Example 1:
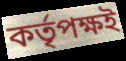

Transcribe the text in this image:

কৰ্তৃপক্ষই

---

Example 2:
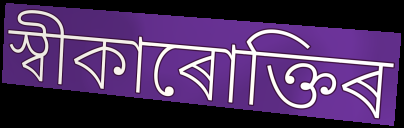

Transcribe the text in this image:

স্বীকাৰোক্তিৰ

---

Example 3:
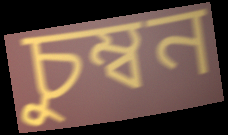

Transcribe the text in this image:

চুম্বন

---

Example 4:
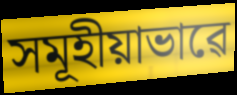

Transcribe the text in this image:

সমূহীয়াভাৱে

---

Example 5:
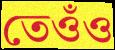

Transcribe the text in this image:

তেওঁও